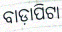
ବାଡ଼ାପିଟା